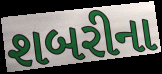
શબરીના